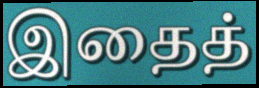
இதைத்